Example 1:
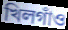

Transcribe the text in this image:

খিলগাঁও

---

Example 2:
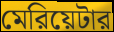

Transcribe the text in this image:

মেরিয়েটার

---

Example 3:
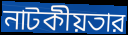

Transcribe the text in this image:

নাটকীয়তার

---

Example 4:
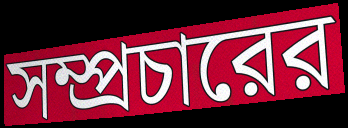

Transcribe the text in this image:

সম্প্রচারের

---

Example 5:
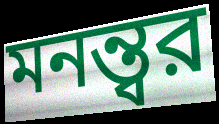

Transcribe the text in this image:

মনন্ত্বর